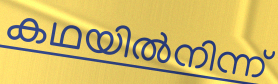
കഥയിൽനിന്ന്